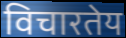
विचारतेय